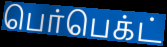
பெர்பெக்ட்